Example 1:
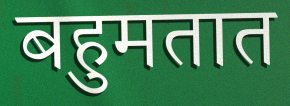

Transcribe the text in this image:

बहुमतात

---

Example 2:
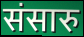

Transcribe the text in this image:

संसारु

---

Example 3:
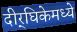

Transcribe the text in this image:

दीर्घिकेमध्ये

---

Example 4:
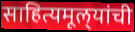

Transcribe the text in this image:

साहित्यमूल्यांची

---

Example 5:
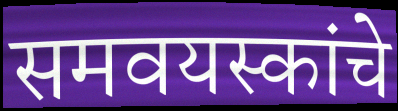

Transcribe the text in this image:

समवयस्कांचे